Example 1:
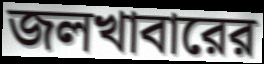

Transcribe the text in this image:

জলখাবারের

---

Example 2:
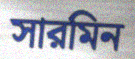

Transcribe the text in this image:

সারমিন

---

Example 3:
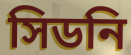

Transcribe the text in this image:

সিডনি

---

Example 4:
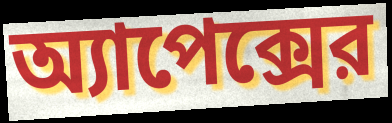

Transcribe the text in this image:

অ্যাপেক্সের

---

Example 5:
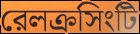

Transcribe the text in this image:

রেলক্রসিংটি